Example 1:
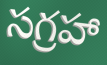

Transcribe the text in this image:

సగ్రహా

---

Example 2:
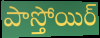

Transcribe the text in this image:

పాస్తోయిర్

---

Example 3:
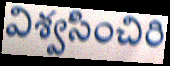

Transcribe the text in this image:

విశ్వసించిరి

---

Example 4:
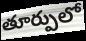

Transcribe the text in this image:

తూర్పులో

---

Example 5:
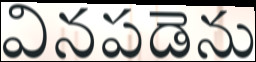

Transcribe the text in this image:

వినపడెను